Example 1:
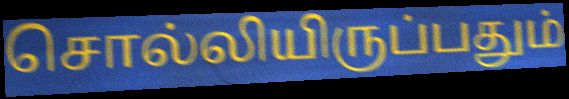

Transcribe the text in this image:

சொல்லியிருப்பதும்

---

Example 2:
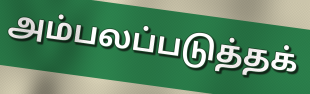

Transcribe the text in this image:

அம்பலப்படுத்தக்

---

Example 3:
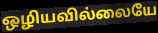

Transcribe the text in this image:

ஒழியவில்லையே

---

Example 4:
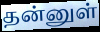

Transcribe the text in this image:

தன்னுள்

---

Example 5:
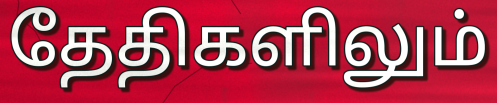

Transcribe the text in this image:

தேதிகளிலும்